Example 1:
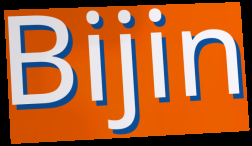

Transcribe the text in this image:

Bijin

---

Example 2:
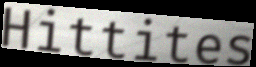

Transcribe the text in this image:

Hittites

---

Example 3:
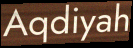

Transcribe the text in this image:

Aqdiyah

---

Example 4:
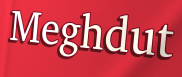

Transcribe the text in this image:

Meghdut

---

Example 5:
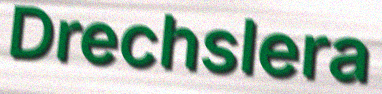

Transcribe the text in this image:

Drechslera